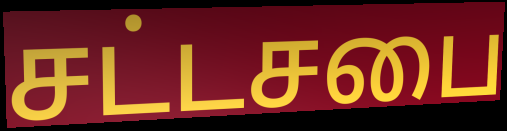
சட்டசபை